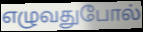
எழுவதுபோல்